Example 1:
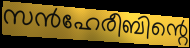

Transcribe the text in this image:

സൻഹേരീബിന്റെ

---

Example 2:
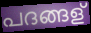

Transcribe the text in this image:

പദങ്ങള്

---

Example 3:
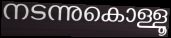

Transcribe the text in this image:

നടന്നുകൊള്ളൂ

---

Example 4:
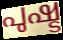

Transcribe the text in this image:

പുഷ്ട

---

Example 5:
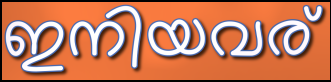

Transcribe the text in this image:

ഇനിയവര്